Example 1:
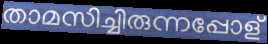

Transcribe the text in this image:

താമസിച്ചിരുന്നപ്പോള്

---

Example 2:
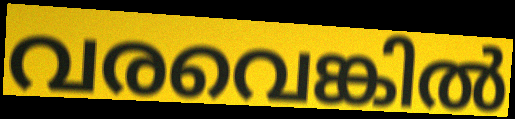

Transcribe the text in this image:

വരവെങ്കിൽ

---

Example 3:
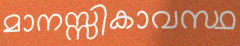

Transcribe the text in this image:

മാനസ്സികാവസ്ഥ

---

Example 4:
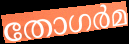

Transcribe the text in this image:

തോഗർമ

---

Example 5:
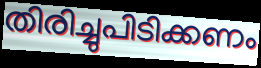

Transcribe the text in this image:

തിരിച്ചുപിടിക്കണം